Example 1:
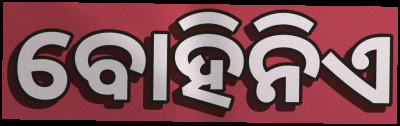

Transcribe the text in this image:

ବୋହିନିଏ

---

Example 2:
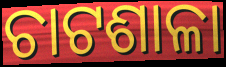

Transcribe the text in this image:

ଚାଟଶାଳା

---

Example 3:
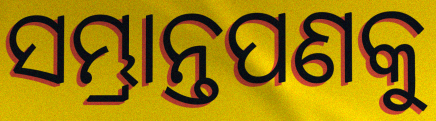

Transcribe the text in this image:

ସମ୍ଭ୍ରାନ୍ତପଣକୁ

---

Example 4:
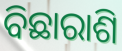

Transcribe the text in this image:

ବିଛାରାଶି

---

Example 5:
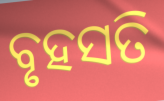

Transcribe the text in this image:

ବୃହସତି